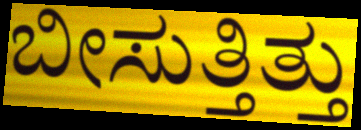
ಬೀಸುತ್ತಿತ್ತು